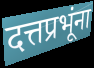
दत्तप्रभूंना